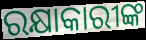
ରକ୍ଷାକାରୀଙ୍କ